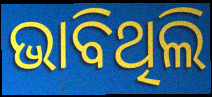
ଭାବିଥିଲି